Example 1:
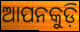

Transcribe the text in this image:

ଆପନକୁଡ଼ି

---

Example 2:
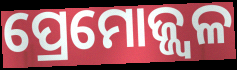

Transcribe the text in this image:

ପ୍ରେମୋଜ୍ଜ୍ୱଳ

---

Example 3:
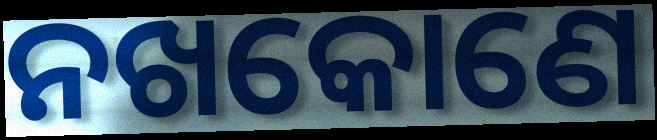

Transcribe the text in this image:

ନଖକୋଣେ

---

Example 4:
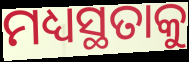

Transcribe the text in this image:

ମଧ୍ୟସ୍ଥତାକୁ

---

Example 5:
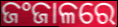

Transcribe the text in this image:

ଜଂଜାଳରେ